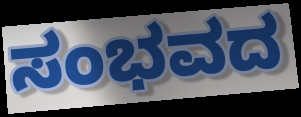
ಸಂಭವದ